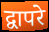
द्वापरे